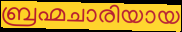
ബ്രഹ്മചാരിയായ